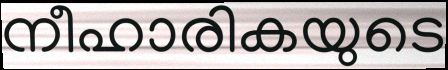
നീഹാരികയുടെ